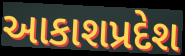
આકાશપ્રદેશ